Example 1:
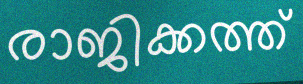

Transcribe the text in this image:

രാജിക്കത്ത്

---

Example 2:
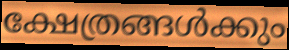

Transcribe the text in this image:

ക്ഷേത്രങ്ങൾക്കും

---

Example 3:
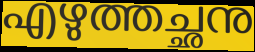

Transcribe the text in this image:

എഴുത്തച്ഛനു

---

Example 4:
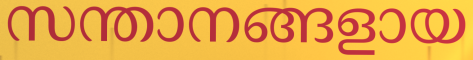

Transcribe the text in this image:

സന്താനങ്ങളായ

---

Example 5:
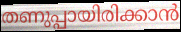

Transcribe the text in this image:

തണുപ്പായിരിക്കാൻ